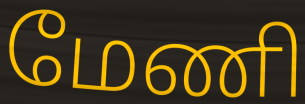
மேணி